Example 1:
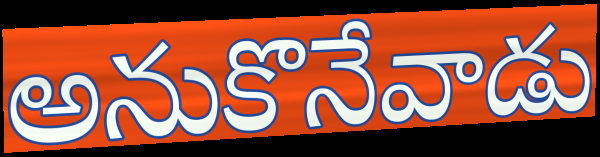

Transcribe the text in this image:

అనుకొనేవాడు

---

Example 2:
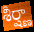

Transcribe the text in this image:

శీర్ష్ణా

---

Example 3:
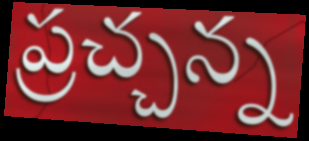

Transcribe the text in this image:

ప్రచ్చన్న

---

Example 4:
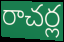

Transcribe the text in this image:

రాచర్ల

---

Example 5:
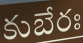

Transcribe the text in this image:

కుబేరః